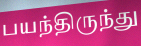
பயந்திருந்து